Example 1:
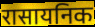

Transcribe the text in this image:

रासायनिक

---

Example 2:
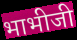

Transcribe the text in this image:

भाभीजी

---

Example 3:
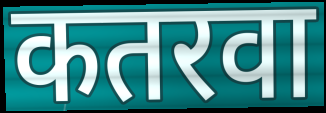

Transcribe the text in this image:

कतरवा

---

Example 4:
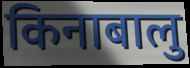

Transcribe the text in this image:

किनाबालु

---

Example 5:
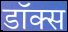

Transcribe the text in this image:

डॉक्स